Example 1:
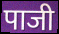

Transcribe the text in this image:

पाजी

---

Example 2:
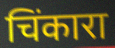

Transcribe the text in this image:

चिंकारा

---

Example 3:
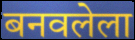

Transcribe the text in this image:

बनवलेला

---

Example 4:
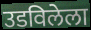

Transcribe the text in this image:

उडविलेला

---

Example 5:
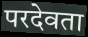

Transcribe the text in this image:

परदेवता